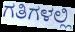
ಗತಿಗಳಲ್ಲಿ